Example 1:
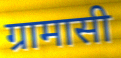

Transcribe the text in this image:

ग्रामासी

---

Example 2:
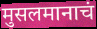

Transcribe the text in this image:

मुसलमानाचं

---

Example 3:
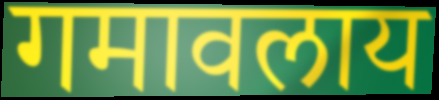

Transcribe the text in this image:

गमावलाय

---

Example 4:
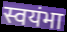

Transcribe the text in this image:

स्वयंभा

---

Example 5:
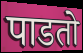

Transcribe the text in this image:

पाडतो